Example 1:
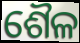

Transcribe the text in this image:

ଶୈଳ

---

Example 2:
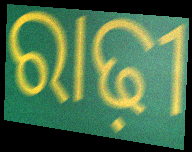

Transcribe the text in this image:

ରାଢ଼ୀ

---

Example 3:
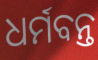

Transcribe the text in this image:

ଧର୍ମବନ୍ତ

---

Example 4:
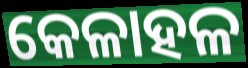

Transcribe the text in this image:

କେଳାହଳ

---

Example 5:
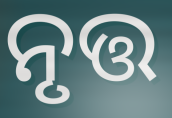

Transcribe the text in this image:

ନୃତ୍ତ